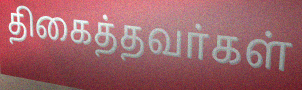
திகைத்தவர்கள்